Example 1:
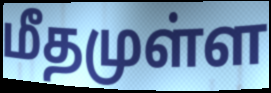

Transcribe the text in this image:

மீதமுள்ள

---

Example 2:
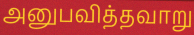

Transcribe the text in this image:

அனுபவித்தவாறு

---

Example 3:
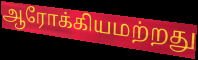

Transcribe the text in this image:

ஆரோக்கியமற்றது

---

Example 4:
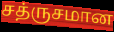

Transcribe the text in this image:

சத்ருசமான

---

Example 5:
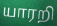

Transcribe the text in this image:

யாரறி